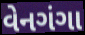
વેનગંગા